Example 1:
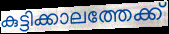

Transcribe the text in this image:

കുട്ടിക്കാലത്തേക്ക്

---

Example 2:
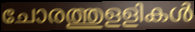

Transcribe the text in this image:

ചോരത്തുളളികൾ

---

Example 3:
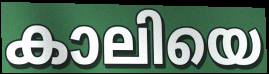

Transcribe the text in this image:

കാലിയെ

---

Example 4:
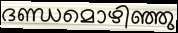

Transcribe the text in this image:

ദണ്ഡമൊഴിഞ്ഞു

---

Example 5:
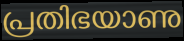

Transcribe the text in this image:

പ്രതിഭയാണു